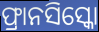
ଫ୍ରାନସିସ୍କୋ